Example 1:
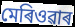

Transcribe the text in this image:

মেৰিওৱাৰ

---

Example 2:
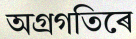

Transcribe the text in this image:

অগ্ৰগতিৰে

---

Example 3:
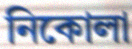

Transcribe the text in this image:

নিকোলা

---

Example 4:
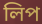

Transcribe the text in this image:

লিপ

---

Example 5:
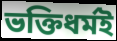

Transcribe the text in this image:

ভক্তিধৰ্মই